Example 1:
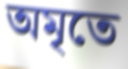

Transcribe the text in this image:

অমৃতে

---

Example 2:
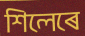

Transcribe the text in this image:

শিলেৰে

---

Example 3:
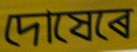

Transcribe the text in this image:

দোষেৰে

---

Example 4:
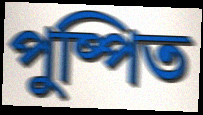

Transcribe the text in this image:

পুষ্পিত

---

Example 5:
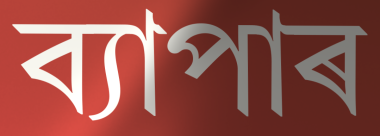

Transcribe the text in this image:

ব্যাপাৰ